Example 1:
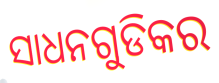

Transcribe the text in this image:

ସାଧନଗୁଡିକର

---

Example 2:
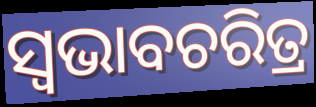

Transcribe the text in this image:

ସ୍ବଭାବଚରିତ୍ର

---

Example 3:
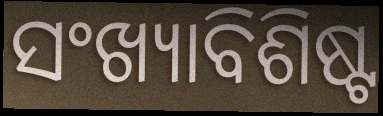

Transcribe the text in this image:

ସଂଖ୍ୟାବିଶିଷ୍ଟ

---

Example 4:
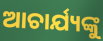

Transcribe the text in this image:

ଆଚାର୍ଯ୍ୟଙ୍କୁ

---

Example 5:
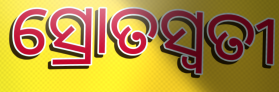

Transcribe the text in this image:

ସ୍ରୋତସ୍ଵତୀ